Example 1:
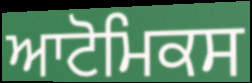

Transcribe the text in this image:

ਆਟੋਮਿਕਸ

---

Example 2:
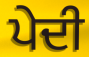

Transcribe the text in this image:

ਪੇਦੀ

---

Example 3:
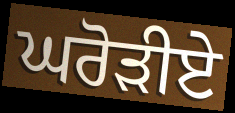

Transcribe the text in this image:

ਘਰੋੜੀਏ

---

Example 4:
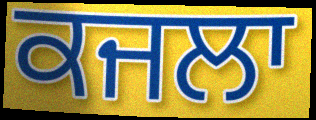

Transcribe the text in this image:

ਕਜਲਾ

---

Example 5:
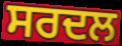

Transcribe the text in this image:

ਸਰਦਲ